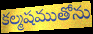
కల్మషముతోను